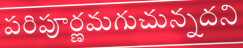
పరిపూర్ణమగుచున్నదని